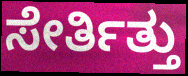
ಸೇರ್ತಿತ್ತು